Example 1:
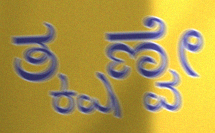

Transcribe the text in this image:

ತ್ಕ್ಷಣ್ವೇ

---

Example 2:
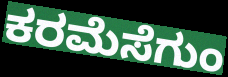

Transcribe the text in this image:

ಕರಮೆಸೆಗುಂ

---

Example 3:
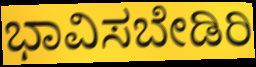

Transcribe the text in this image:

ಭಾವಿಸಬೇಡಿರಿ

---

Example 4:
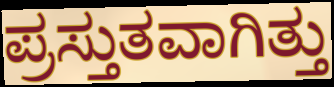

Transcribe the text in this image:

ಪ್ರಸ್ತುತವಾಗಿತ್ತು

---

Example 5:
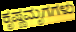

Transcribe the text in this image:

ಕೃಷ್ಣಮೃಗಗಳು